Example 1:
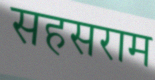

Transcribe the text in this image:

सहसराम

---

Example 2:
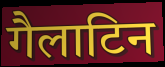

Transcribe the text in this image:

गैलाटिन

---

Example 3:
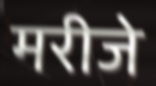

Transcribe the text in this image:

मरीजे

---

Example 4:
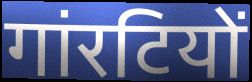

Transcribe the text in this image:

गांरटियों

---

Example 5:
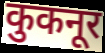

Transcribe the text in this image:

कुकनूर